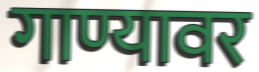
गाण्यावर